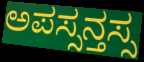
ಅಪಸ್ಸನ್ತಸ್ಸ